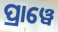
ପ୍ରାୱେ